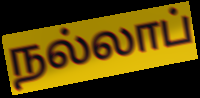
நல்லாப்